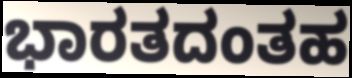
ಭಾರತದಂತಹ